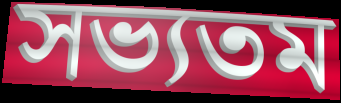
সভ্যতম